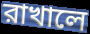
রাখালে